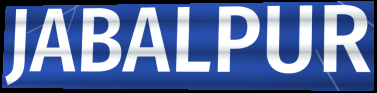
JABALPUR